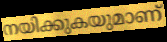
നയിക്കുകയുമാണ്